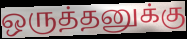
ஒருத்தனுக்கு